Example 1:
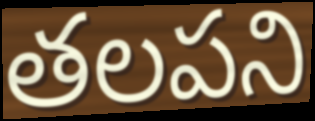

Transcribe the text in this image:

తలపని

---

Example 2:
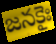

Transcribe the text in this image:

జనకైః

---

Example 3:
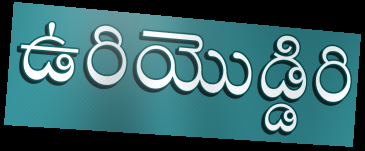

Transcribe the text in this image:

ఉరియొడ్డిరి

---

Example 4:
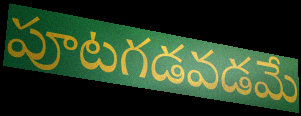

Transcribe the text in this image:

పూటగడవడమే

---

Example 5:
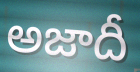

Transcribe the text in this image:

అజాదీ